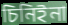
চিনিইনা